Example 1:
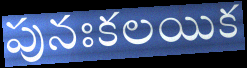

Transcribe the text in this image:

పునఃకలయిక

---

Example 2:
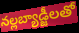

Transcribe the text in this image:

నల్లబ్యాడ్జీలతో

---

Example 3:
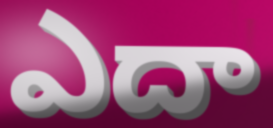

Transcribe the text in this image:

ఎదా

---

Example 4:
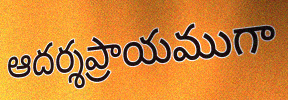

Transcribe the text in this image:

ఆదర్శప్రాయముగా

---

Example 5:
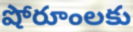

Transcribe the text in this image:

షోరూంలకు